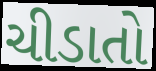
ચીડાતો